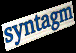
syntagm